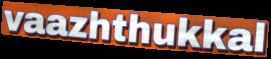
vaazhthukkal